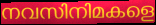
നവസിനിമകളെ